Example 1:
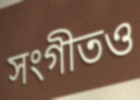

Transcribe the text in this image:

সংগীতও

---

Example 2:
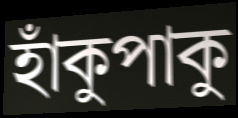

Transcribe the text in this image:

হাঁকুপাকু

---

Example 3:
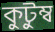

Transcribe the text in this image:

কুটুম্ব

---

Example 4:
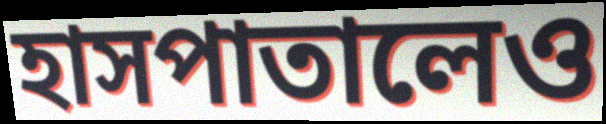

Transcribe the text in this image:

হাসপাতালেও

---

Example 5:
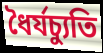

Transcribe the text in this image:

ধৈর্যচ্যুতি